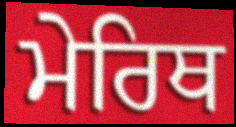
ਮੇਰਿਥ